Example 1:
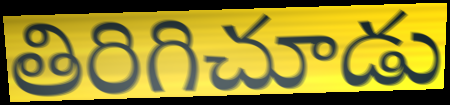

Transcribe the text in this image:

తిరిగిచూడు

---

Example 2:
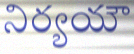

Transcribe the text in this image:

నిర్యయౌ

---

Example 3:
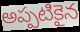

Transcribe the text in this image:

అప్పటికైన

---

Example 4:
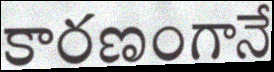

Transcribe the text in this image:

కారణంగానే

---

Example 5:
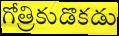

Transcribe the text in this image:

గోత్రికుడొకడు